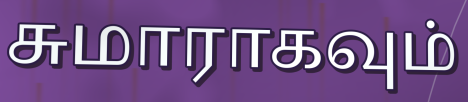
சுமாராகவும்